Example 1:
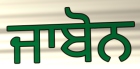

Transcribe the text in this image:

ਜਾਬੋਨ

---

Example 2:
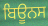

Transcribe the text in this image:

ਬਿਊਨਸ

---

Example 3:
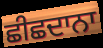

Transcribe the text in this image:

ਛੀਛਦਾਨਾ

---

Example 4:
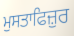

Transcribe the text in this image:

ਮੁਸਤਾਫਿਜ਼ੁਰ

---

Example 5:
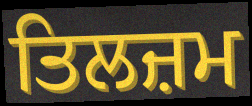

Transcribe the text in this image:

ਤਿਲਜ਼ਮ